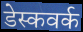
डेस्कवर्क